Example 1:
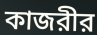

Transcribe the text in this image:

কাজরীর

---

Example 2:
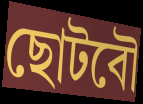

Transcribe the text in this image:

ছোটবৌ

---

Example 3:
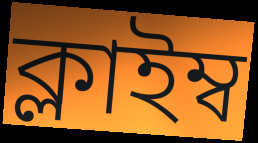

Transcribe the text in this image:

ক্লাইম্ব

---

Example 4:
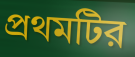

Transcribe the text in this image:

প্রথমটির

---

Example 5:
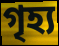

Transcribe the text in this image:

গৃহ্য